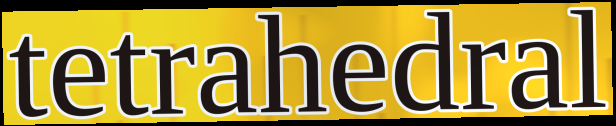
tetrahedral